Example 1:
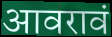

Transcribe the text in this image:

आवरावं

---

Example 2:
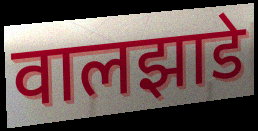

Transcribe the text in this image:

वालझाडे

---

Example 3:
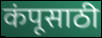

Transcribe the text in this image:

कंपूसाठी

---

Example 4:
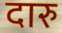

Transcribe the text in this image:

दारु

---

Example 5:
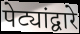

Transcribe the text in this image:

पेट्यांद्वारे